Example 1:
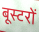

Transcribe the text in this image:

बूस्टरों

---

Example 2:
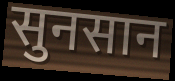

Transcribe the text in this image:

सुनसान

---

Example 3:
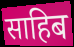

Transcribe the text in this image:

साहिब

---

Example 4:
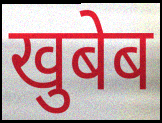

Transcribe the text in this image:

खुबेब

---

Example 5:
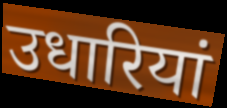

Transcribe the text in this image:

उधारियां